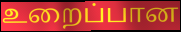
உறைப்பான